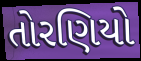
તોરણિયો